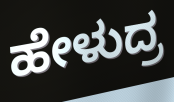
ಹೇಳುದ್ರ